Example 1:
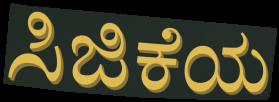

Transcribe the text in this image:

ಸಿಜಿಕೆಯ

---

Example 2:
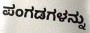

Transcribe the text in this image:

ಪಂಗಡಗಳನ್ನು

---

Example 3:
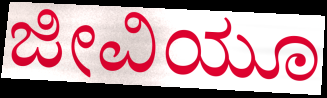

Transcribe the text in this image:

ಜೀವಿಯೂ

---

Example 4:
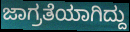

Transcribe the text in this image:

ಜಾಗ್ರತೆಯಾಗಿದ್ದು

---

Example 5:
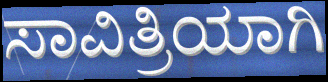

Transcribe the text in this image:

ಸಾವಿತ್ರಿಯಾಗಿ